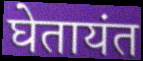
घेतायंत